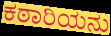
ಕಠಾರಿಯನು